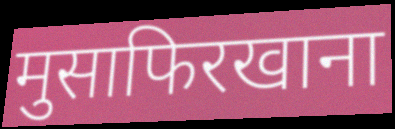
मुसाफिरखाना